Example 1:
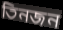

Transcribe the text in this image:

তিনজন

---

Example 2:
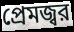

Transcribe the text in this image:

প্রেমজ্বর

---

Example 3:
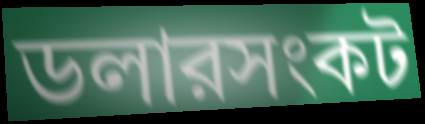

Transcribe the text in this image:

ডলারসংকট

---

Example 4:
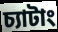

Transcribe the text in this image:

চ্যাটাং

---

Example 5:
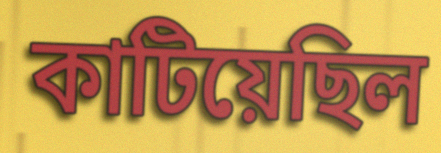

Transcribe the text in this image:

কাটিয়েছিল